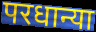
परधान्या